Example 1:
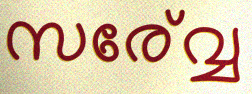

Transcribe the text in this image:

സര്വ്വേ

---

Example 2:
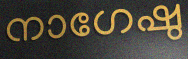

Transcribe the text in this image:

നാഗേഷു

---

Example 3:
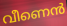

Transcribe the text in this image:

വീണെൻ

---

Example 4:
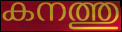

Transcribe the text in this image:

കനത്തു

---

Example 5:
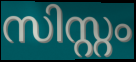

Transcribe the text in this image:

സിസ്റ്റം